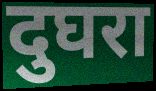
दुघरा